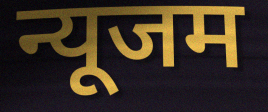
न्यूजम